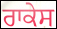
ਰਾਕੇਸ